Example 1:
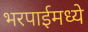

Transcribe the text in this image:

भरपाईमध्ये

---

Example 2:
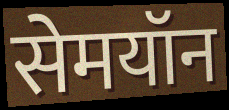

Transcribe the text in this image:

सेमयॉन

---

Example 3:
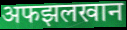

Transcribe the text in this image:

अफझलखान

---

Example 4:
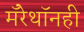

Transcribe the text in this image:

मॅरेथॉनही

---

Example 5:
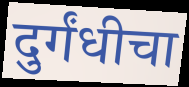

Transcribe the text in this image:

दुर्गंधीचा